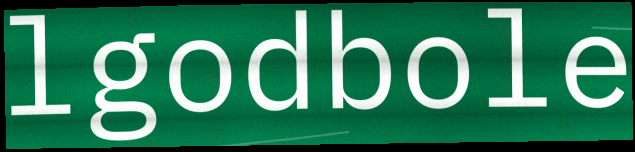
lgodbole